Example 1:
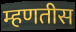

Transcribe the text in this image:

म्हणतीस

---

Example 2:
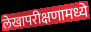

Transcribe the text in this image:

लेखापरीक्षणामध्ये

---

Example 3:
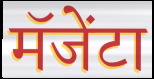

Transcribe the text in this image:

मॅजेंटा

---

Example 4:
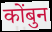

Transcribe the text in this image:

कोंबुन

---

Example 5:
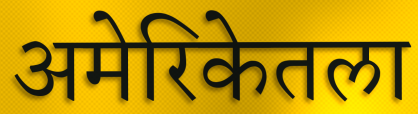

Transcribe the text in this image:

अमेरिकेतला